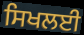
ਸਿਖਲਈ